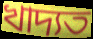
খাদ্যত